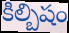
కిల్బిషం